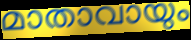
മാതാവായും